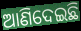
ଆଣିଦେଇଛି